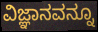
ವಿಜ್ಞಾನವನ್ನೂ